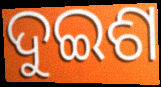
ଦୁଇଶ